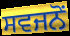
ਸਵਜਨੋਂ